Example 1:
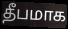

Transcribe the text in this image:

தீபமாக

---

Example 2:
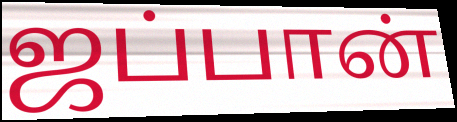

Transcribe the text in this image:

ஜப்பான்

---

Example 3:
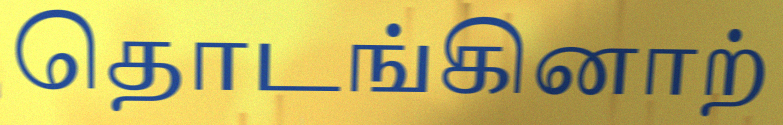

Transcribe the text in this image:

தொடங்கினாற்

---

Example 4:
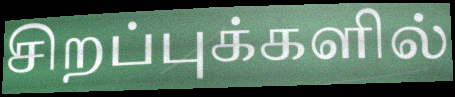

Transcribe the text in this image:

சிறப்புக்களில்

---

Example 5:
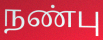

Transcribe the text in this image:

நண்பு